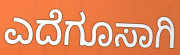
ಎದೆಗೂಸಾಗಿ